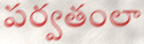
పర్వతంలా